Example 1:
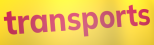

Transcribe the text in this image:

transports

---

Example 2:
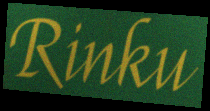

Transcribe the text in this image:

Rinku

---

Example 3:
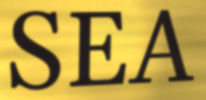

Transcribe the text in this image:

SEA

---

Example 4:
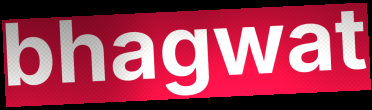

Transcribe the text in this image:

bhagwat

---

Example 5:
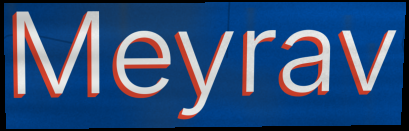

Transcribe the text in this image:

Meyrav